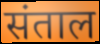
संताल